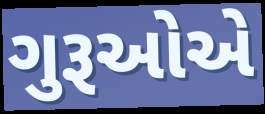
ગુરૂઓએ